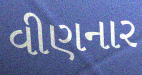
વીણનાર